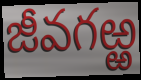
జీవగఱ్ఱ